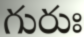
గురుః